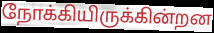
நோக்கியிருக்கின்றன